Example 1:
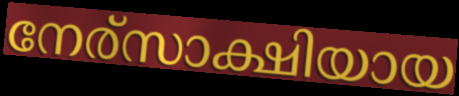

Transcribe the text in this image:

നേര്സാക്ഷിയായ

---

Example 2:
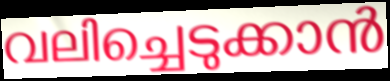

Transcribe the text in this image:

വലിച്ചെടുക്കാൻ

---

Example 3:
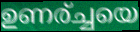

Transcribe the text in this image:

ഉണര്ച്ചയെ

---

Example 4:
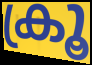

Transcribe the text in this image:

ക്രൂ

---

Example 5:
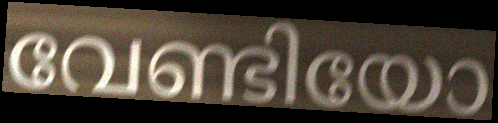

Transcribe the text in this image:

വേണ്ടിയോ